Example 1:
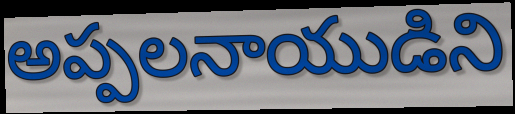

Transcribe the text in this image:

అప్పలనాయుడిని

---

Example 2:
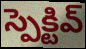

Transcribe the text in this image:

స్పెక్టివ్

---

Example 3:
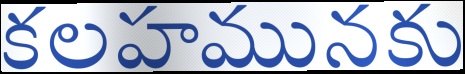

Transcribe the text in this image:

కలహమునకు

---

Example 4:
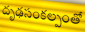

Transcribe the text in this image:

దృఢసంకల్పంతో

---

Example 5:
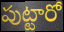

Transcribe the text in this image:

పుట్టారో